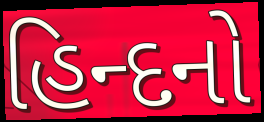
હિન્દનો